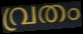
വ്രതം